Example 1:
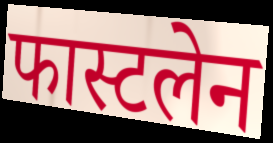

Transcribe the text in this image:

फास्टलेन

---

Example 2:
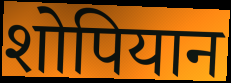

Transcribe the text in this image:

शोपियान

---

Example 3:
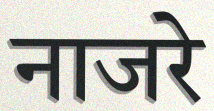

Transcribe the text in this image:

नाजरे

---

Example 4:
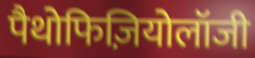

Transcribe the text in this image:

पैथोफिज़ियोलॉजी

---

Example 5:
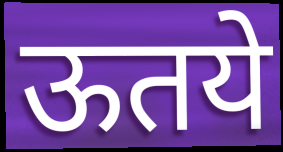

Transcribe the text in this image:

ऊतये